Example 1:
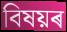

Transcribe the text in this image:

বিষয়ৰ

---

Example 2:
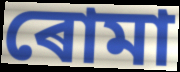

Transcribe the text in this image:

ৰোমা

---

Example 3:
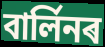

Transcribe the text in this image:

বাৰ্লিনৰ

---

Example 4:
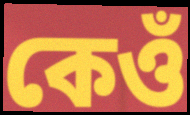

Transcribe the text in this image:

কেওঁ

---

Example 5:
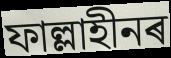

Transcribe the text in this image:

ফাল্লাহীনৰ